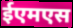
ईएमएस